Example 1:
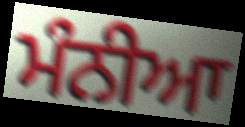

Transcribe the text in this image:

ਮੰਨੀਆ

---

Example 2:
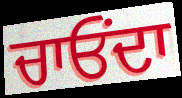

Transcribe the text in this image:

ਚਾਓਂਦਾ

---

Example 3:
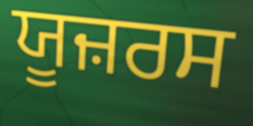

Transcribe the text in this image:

ਯੂਜ਼ਰਸ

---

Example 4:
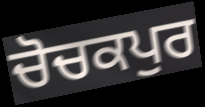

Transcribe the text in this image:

ਚੋਚਕਪੁਰ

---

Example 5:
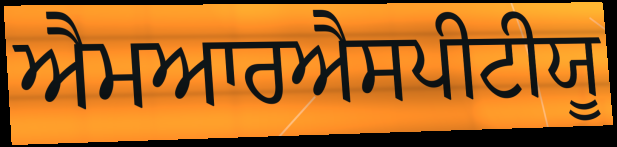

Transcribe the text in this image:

ਐਮਆਰਐਸਪੀਟੀਯੂ